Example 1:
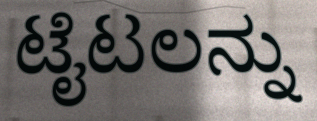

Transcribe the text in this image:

ಟೈಟಲನ್ನು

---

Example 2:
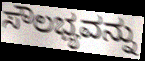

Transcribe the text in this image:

ಸೌಲಭ್ಯವನ್ನು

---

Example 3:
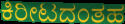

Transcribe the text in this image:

ಕಿರೀಟದಂತಹ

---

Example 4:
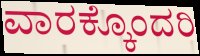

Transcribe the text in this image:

ವಾರಕ್ಕೊಂದರಿ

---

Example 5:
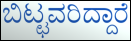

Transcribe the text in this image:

ಬಿಟ್ಟವರಿದ್ದಾರೆ